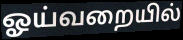
ஓய்வறையில்